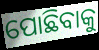
ପୋଛିବାକୁ